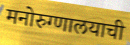
मनोरुग्णालयाची